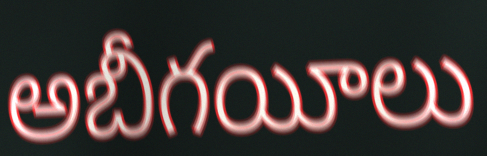
అబీగయీలు